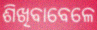
ଶିଖିବାବେଳେ